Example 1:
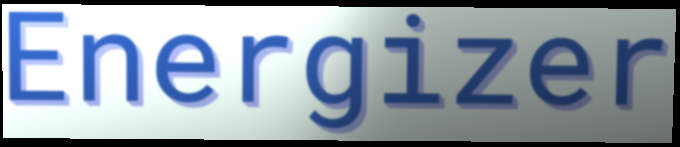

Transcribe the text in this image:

Energizer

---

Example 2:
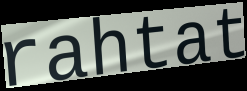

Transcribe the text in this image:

rahtat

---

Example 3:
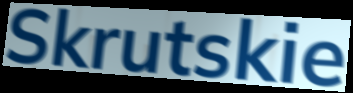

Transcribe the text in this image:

Skrutskie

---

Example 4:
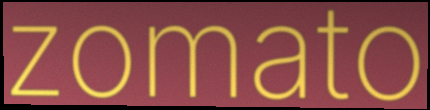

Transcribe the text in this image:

zomato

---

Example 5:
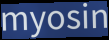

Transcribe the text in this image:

myosin